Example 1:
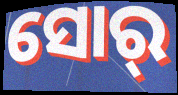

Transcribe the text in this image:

ସୋର୍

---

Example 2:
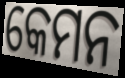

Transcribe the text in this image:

କେମନ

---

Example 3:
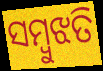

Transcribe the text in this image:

ସମ୍ବୁଝତି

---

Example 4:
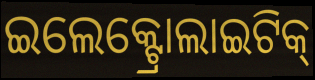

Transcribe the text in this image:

ଇଲେକ୍ଟ୍ରୋଲାଇଟିକ୍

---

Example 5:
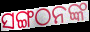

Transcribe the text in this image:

ସଙ୍ଗଠନଙ୍କ